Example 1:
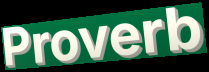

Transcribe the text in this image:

Proverb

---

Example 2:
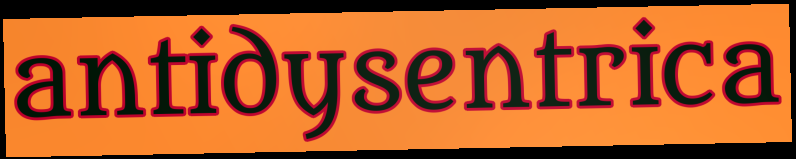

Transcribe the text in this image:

antidysentrica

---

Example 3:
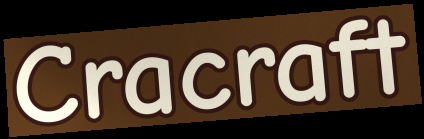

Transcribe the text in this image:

Cracraft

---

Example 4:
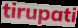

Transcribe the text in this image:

tirupati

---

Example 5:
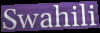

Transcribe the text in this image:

Swahili